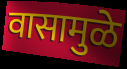
वासामुळे